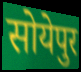
सोयेपुर